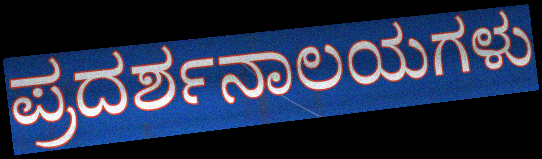
ಪ್ರದರ್ಶನಾಲಯಗಳು